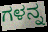
ಗಳನ್ನ